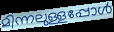
മിന്നലുള്ളപ്പോൾ